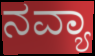
ನವ್ಯಾ